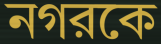
নগরকে